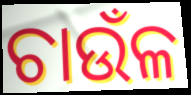
ଚାଉଁଳ